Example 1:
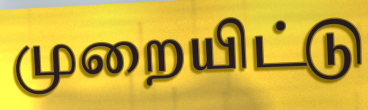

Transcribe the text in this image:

முறையிட்டு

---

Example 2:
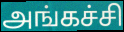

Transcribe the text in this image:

அங்கச்சி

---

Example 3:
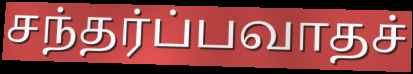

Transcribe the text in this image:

சந்தர்ப்பவாதச்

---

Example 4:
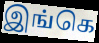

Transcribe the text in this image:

இங்கெ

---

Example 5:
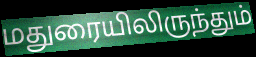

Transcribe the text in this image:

மதுரையிலிருந்தும்